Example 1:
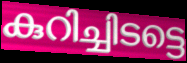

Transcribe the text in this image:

കുറിച്ചിടട്ടെ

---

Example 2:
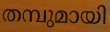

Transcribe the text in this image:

തമ്പുമായി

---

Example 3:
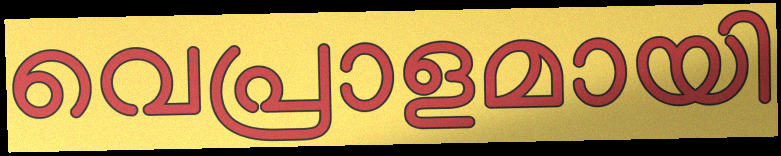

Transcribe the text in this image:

വെപ്രാളമായി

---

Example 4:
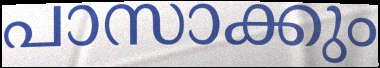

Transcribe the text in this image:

പാസാക്കും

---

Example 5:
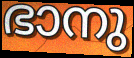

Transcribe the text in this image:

ഭാനു